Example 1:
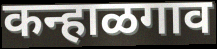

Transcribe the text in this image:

कन्हाळगाव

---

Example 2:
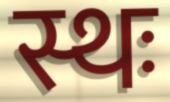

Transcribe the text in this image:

स्थः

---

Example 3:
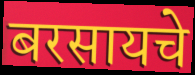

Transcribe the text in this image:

बरसायचे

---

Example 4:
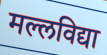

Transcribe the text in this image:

मल्लविद्या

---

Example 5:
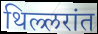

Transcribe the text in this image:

थिल्लरांत